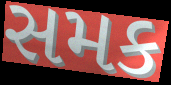
સમક